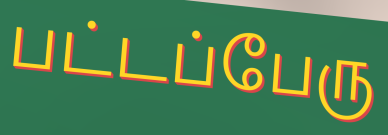
பட்டப்பேரு